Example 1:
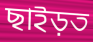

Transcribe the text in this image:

ছাইড়ত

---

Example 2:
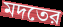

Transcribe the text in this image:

মদতের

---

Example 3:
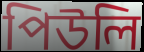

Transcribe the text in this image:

পিউলি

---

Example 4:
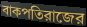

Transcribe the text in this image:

বাকপতিরাজের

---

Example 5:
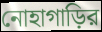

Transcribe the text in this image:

নোহাগাড়ির